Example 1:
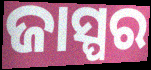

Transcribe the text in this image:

ଜାସ୍ପର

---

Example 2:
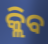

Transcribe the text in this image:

କ୍ଲିବ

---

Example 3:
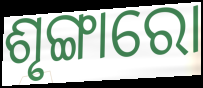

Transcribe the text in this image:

ଶୃଙ୍ଗାରୋ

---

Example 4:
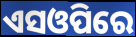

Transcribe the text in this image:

ଏସଓପିରେ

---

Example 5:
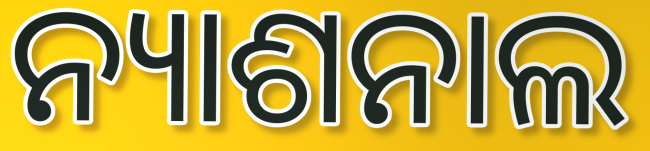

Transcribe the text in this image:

ନ୍ୟାଶନାଲ